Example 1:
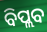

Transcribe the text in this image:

ବିପ୍ଲବ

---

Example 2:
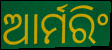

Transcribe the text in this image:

ଆର୍ମରିଂ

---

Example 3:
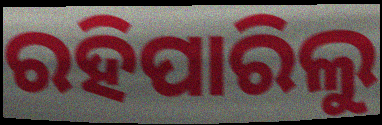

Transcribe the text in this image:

ରହିପାରିଲୁ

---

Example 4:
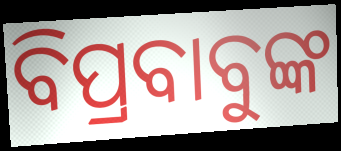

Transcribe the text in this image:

ବିପ୍ରବାବୁଙ୍କ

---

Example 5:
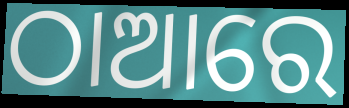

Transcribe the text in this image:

ଠାଆରେ